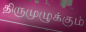
திருமுழுக்கும்